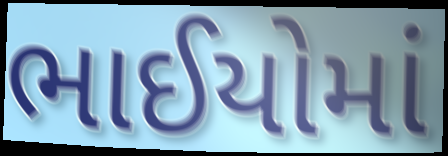
ભાઈયોમાં